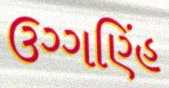
ઉગ્ગણ્હિં